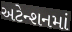
અટેન્શનમાં